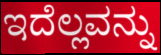
ಇದೆಲ್ಲವನ್ನು